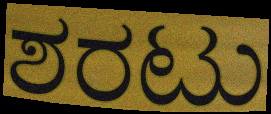
ಶರಟು